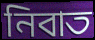
নিবাত